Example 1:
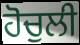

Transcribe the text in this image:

ਹੋਚੁਲੀ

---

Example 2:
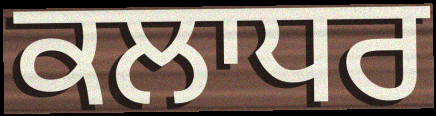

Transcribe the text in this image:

ਕਲਾਧਰ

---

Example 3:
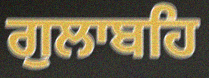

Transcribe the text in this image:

ਗੁਲਾਬਹਿ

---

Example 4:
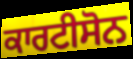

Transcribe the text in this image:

ਕਾਰਟੀਸੋਨ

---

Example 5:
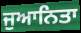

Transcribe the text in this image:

ਜੁਆਨਿਤਾ